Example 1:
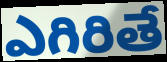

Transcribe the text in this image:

ఎగిరితే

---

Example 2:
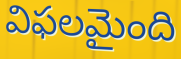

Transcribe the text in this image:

విఫలమైంది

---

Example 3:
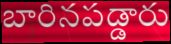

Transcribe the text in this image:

బారినపడ్డారు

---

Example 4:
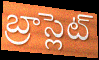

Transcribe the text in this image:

బ్రాస్లెట్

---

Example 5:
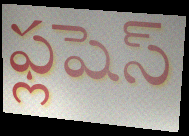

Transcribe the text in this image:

ఫ్లషెస్